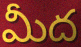
మీద